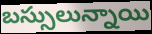
బస్సులున్నాయి